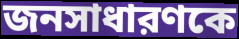
জনসাধারণকে